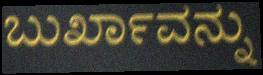
ಬುರ್ಖಾವನ್ನು